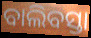
ବାଲିବସ୍ତା